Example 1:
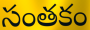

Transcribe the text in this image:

సంతకం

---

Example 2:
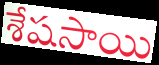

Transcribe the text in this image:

శేషసాయి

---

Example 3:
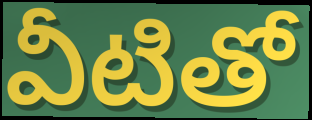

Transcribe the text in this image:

వీటితో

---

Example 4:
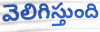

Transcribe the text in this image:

వెలిగిస్తుంది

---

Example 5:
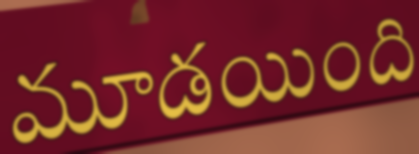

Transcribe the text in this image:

మూడయింది